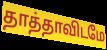
தாத்தாவிடமே